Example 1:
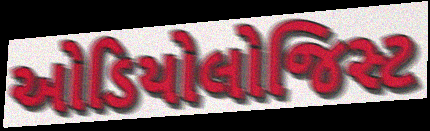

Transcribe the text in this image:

ઓડિયોલોજિસ્ટ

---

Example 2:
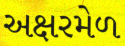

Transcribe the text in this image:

અક્ષરમેળ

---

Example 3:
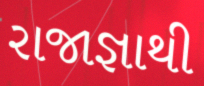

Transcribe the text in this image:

રાજાજ્ઞાથી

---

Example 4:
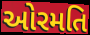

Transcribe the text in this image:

ઓરમતિ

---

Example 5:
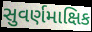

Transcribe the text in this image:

સુવર્ણમાક્ષિક